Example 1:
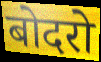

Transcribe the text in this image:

बोदरो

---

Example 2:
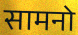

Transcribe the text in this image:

सामनो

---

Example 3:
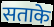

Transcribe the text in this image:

सताके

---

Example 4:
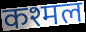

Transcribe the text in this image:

कश्मल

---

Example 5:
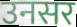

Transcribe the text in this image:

उनसर